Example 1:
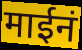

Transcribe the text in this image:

माईनं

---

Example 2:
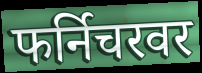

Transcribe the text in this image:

फर्निचरवर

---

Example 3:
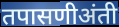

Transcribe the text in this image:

तपासणीअंती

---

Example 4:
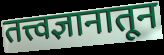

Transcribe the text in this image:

तत्त्वज्ञानातून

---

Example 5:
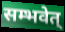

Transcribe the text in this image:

सम्भवेत्